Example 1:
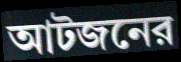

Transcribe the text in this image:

আটজনের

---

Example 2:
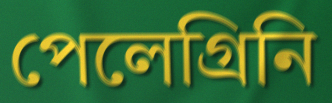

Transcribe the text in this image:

পেলেগ্রিনি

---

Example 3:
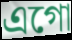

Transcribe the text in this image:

এগো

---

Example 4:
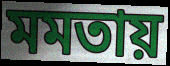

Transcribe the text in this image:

মমতায়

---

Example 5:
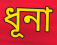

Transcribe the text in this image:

ধূনা